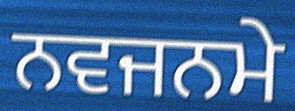
ਨਵਜਨਮੇ